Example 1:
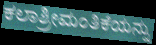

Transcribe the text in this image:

ಕಲಾಶ್ರೀಮಂತಿಕೆಯನ್ನು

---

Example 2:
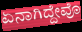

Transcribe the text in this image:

ಏನಾಗಿದ್ದೇವೊ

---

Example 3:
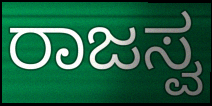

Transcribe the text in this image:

ರಾಜಸ್ವ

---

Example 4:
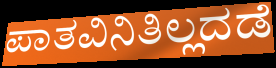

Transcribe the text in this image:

ಪಾತವಿನಿತಿಲ್ಲದಡೆ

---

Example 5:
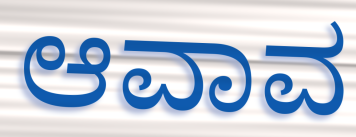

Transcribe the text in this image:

ಆವಾವ